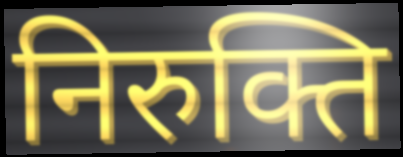
निरुक्ति